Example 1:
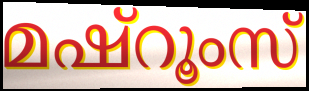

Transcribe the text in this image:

മഷ്റൂംസ്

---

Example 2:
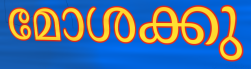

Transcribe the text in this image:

മോശക്കു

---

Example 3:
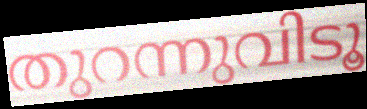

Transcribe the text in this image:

തുറന്നുവിടൂ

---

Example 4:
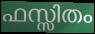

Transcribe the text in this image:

ഫസ്സിതം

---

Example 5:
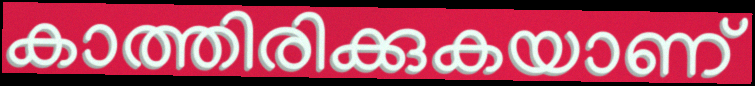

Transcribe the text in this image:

കാത്തിരിക്കുകയാണ്